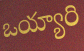
ఒయ్యారి